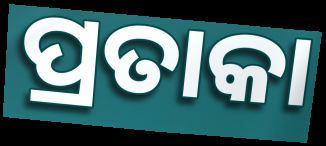
ପ୍ରତାକା